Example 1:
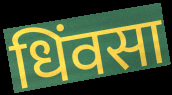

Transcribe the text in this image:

धिंवसा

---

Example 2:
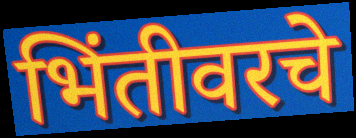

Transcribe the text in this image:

भिंतीवरचे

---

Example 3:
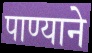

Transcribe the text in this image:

पाण्याने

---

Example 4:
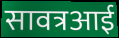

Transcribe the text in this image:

सावत्रआई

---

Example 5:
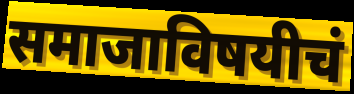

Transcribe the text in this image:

समाजाविषयीचं